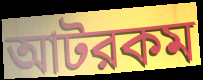
আটরকম